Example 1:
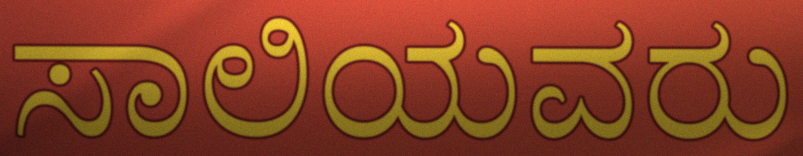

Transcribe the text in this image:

ಸಾಲಿಯವರು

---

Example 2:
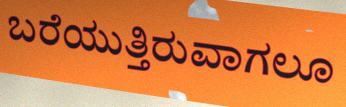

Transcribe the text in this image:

ಬರೆಯುತ್ತಿರುವಾಗಲೂ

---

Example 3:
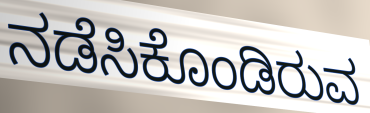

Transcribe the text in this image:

ನಡೆಸಿಕೊಂಡಿರುವ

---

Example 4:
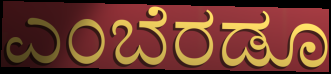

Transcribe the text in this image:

ಎಂಬೆರಡೂ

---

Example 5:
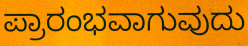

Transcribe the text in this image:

ಪ್ರಾರಂಭವಾಗುವುದು